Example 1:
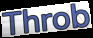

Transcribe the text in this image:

Throb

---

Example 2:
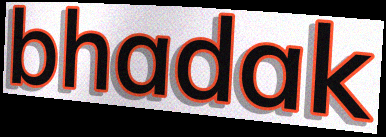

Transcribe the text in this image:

bhadak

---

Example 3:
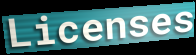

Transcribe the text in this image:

Licenses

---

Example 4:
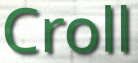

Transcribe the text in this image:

Croll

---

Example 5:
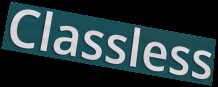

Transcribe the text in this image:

Classless